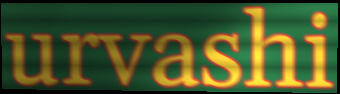
urvashi